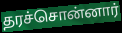
தரச்சொன்னார்